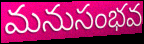
మనుసంభవ